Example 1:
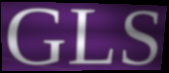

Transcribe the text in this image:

GLS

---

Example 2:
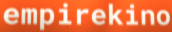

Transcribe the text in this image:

empirekino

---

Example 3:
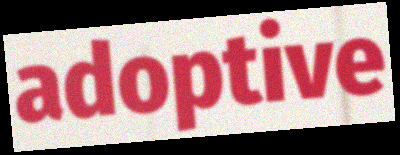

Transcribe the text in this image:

adoptive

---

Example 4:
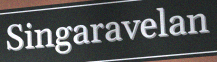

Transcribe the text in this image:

Singaravelan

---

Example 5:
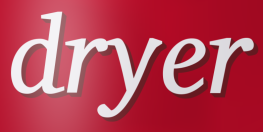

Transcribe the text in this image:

dryer